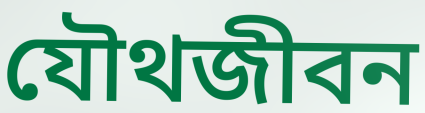
যৌথজীবন